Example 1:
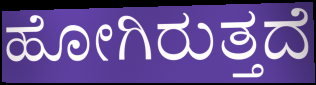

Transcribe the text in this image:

ಹೋಗಿರುತ್ತದೆ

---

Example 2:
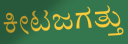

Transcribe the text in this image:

ಕೀಟಜಗತ್ತು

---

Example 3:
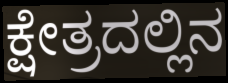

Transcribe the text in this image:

ಕ್ಷೇತ್ರದಲ್ಲಿನ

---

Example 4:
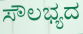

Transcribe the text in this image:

ಸೌಲಭ್ಯದ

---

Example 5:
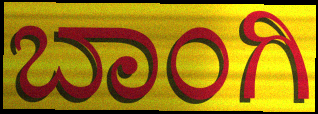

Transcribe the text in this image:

ಬಾಂಗಿ